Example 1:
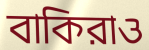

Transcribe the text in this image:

বাকিরাও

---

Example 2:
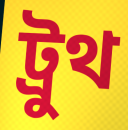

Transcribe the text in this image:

ট্রুথ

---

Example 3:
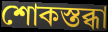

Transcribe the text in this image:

শোকস্তব্ধা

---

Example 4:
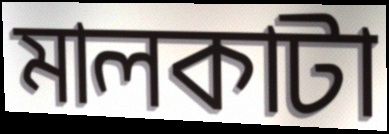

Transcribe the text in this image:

মালকাটা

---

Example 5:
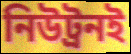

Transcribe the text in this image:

নিউট্রনই